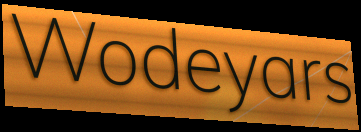
Wodeyars